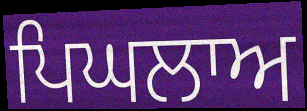
ਪਿਘਲਾਅ